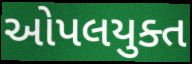
ઓપલયુક્ત